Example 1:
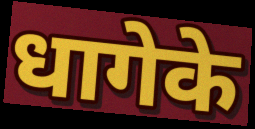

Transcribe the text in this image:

धागेके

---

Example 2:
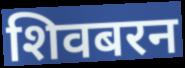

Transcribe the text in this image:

शिवबरन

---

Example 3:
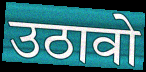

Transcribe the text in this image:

उठावो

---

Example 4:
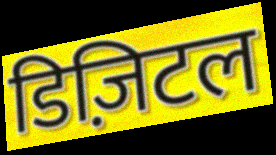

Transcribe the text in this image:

डिज़िटल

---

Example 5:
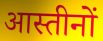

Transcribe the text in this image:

आस्तीनों